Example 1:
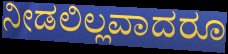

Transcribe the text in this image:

ನೀಡಲಿಲ್ಲವಾದರೂ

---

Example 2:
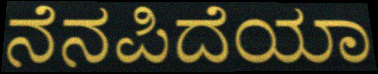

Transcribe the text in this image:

ನೆನಪಿದೆಯಾ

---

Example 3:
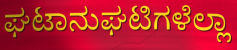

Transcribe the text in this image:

ಘಟಾನುಘಟಿಗಳೆಲ್ಲಾ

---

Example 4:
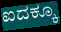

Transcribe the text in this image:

ಐದಕ್ಕೂ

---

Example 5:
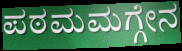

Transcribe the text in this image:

ಪಠಮಮಗ್ಗೇನ